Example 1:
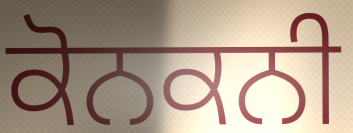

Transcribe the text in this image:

ਕੋਨਕਨੀ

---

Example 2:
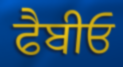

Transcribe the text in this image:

ਫੈਬੀਓ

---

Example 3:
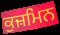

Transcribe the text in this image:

ਕੁਜ਼ਮਿਨ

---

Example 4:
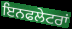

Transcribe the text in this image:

ਇਨਫਲੇਟਰਾਂ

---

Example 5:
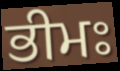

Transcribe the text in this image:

ਭੀਮਃ